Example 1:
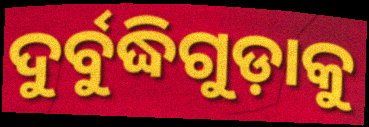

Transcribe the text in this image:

ଦୁର୍ବୁଦ୍ଧିଗୁଡ଼ାକୁ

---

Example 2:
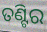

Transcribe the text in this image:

ତଣ୍ଟିର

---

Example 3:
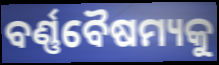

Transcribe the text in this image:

ବର୍ଣ୍ଣବୈଷମ୍ୟକୁ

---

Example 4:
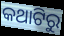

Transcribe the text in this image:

କଥାଟିରୁ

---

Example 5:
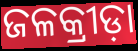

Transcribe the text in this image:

ଜଳକ୍ରୀଡ଼ା